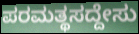
ಪರಮತ್ಥಸದ್ದೇಸು